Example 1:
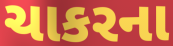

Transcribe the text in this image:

ચાકરના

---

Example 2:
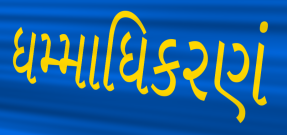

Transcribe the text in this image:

ધમ્માધિકરણં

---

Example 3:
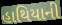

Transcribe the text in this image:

હાથિયાની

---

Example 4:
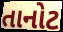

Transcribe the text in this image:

તાનોટ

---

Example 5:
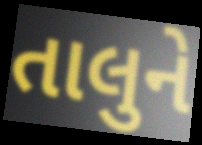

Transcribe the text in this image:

તાલુને